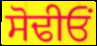
ਸੋਢੀਓਂ